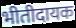
भीतीदायक